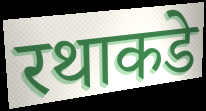
रथाकडे